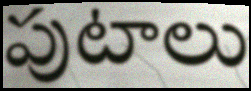
పుటాలు